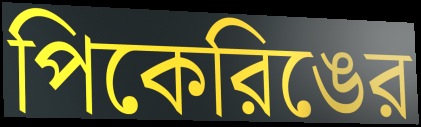
পিকেরিঙের